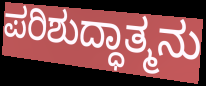
ಪರಿಶುದ್ಧಾತ್ಮನು